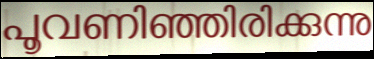
പൂവണിഞ്ഞിരിക്കുന്നു